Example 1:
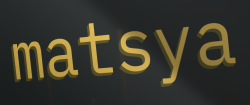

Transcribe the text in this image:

matsya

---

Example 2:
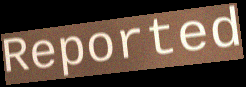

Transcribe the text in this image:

Reported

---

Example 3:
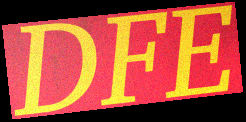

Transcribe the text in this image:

DFE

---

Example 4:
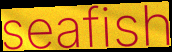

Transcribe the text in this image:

seafish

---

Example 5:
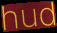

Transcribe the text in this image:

hud